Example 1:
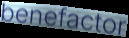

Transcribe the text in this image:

benefactor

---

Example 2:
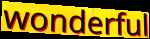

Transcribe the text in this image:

wonderful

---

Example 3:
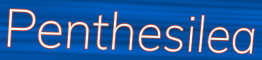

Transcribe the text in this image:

Penthesilea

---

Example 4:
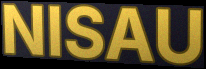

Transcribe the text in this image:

NISAU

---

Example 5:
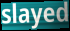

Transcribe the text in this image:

slayed